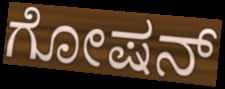
ಗೋಷನ್